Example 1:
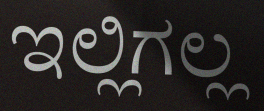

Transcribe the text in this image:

ಇಲ್ಲಿಗಲ್ಲ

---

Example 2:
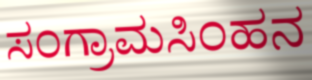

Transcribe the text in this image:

ಸಂಗ್ರಾಮಸಿಂಹನ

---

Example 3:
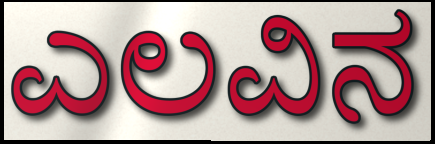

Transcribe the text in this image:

ಎಲವಿನ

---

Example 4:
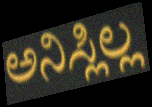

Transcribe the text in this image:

ಅನಿಸ್ಲಿಲ್ಲ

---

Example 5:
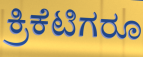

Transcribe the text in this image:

ಕ್ರಿಕೆಟಿಗರೂ